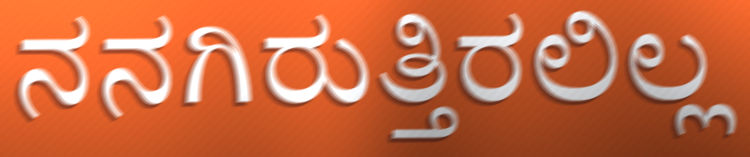
ನನಗಿರುತ್ತಿರಲಿಲ್ಲ